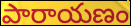
పారాయణం